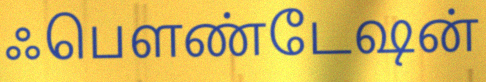
ஃபௌண்டேஷன்